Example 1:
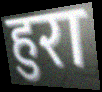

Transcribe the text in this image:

हुरा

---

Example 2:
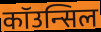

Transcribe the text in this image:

कॉउन्सिल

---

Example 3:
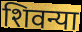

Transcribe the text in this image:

शिवन्या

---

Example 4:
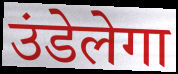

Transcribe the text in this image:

उंडेलेगा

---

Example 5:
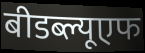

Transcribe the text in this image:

बीडब्ल्यूएफ